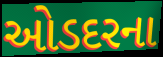
ઓડદરના